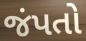
જંપતો